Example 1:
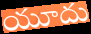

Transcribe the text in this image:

యూదు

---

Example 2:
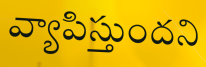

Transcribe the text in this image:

వ్యాపిస్తుందని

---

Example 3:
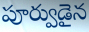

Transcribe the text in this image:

పూర్వుడైన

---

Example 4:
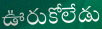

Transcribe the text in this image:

ఊరుకోలేడు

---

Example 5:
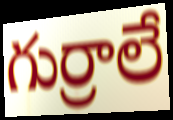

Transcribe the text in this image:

గుర్రాలే